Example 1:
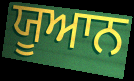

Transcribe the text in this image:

ਯੂਆਨ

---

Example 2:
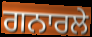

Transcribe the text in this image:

ਗਨਾਰਲੇ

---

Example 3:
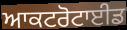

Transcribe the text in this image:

ਆਕਟਰੋਟਾਈਡ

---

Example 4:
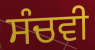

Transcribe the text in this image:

ਸੰਚਵੀ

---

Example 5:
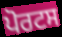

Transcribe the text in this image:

ਪੋਰਟਸ